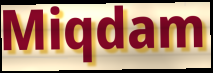
Miqdam